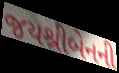
જયશ્રીબેનની